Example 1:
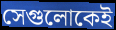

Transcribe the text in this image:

সেগুলোকেই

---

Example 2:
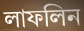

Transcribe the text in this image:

লাফলিন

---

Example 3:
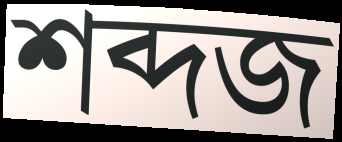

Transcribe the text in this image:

শব্দজ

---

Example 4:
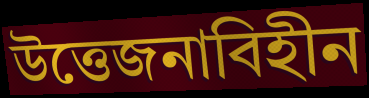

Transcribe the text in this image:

উত্তেজনাবিহীন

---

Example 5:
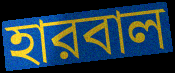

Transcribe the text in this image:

হারবাল